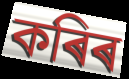
কৰিৰ